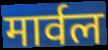
मार्वल